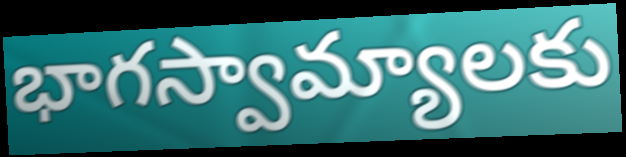
భాగస్వామ్యాలకు